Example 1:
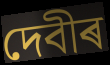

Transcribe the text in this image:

দেবীৰ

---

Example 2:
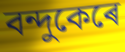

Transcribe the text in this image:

বন্দুকেৰে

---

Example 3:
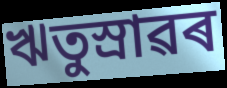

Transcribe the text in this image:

ঋতুস্ৰাৱৰ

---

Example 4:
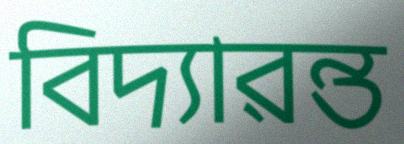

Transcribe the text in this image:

বিদ্যাৱন্ত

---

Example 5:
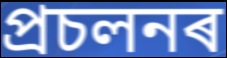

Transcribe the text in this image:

প্ৰচলনৰ